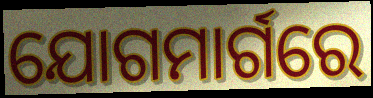
ଯୋଗମାର୍ଗରେ